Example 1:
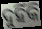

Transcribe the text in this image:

ଦୁହିଁକି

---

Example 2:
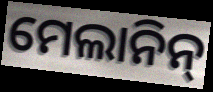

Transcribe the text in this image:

ମେଲାନିନ୍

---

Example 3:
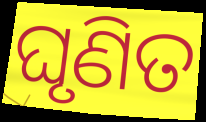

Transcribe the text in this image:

ଘୃଣିତ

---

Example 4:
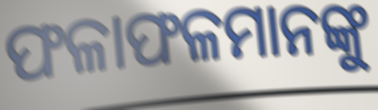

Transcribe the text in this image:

ଫଳାଫଳମାନଙ୍କୁ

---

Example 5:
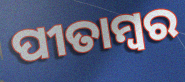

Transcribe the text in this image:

ପୀତାମ୍ୱର